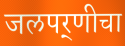
जलपर्णीचा